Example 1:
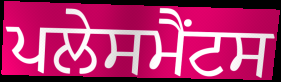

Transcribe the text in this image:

ਪਲੇਸਮੈਂਟਸ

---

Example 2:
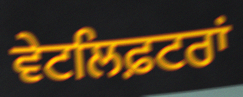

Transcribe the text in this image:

ਵੇਟਲਿਫ਼ਟਰਾਂ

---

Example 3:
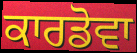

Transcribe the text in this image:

ਕਾਰਡੋਵਾ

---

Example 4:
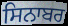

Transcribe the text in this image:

ਸਿਨਾਬਰ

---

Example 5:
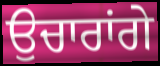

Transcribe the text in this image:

ਉਚਾਰਾਂਗੇ